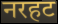
नरहट